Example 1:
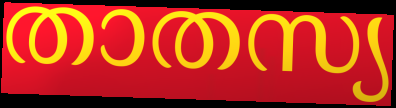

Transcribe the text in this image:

താതസ്യ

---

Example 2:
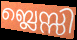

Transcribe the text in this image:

ബ്ലെസ്സി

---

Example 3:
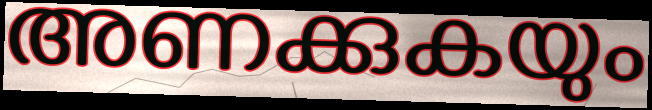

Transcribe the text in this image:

അണക്കുകയും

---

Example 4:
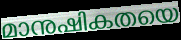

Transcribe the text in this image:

മാനുഷികതയെ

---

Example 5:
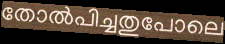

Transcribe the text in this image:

തോൽപിച്ചതുപോലെ